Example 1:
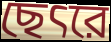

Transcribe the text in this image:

ছেৎরে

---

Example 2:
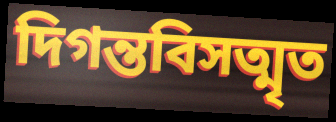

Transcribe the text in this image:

দিগন্তবিসত্মৃত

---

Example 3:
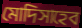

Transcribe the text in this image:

মোদিসাহেব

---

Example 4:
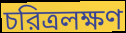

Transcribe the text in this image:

চরিত্রলক্ষণ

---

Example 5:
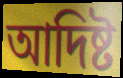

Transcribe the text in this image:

আদিষ্ট